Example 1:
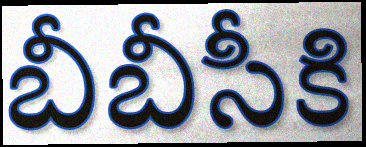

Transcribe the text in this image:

బీబీసీకి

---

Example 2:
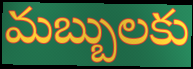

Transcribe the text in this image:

మబ్బులకు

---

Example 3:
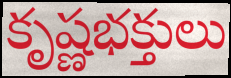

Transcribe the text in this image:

కృష్ణభక్తులు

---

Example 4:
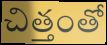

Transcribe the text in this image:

చిత్తంతో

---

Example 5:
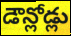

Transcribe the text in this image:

డౌన్లోడ్లు